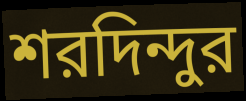
শরদিন্দুর